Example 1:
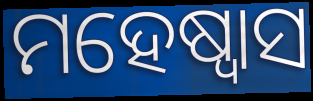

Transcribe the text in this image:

ମହେଷ୍ୱାସ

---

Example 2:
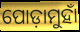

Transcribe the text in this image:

ପୋଡ଼ାମୁହାଁ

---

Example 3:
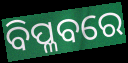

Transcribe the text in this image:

ବିପ୍ଳବରେ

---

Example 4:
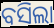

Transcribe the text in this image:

ବସିଲା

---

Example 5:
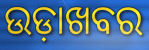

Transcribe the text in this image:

ଉଡ଼ାଖବର